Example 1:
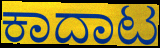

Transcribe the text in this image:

ಕಾದಾಟ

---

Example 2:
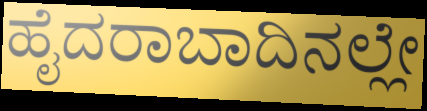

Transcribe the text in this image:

ಹೈದರಾಬಾದಿನಲ್ಲೇ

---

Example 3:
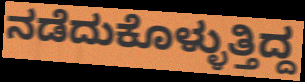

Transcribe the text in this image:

ನಡೆದುಕೊಳ್ಳುತ್ತಿದ್ದ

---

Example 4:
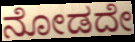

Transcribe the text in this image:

ನೋಡದೇ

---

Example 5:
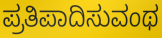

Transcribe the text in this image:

ಪ್ರತಿಪಾದಿಸುವಂಥ